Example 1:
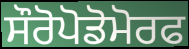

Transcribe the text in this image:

ਸੌਰੋਪੋਡੋਮੋਰਫ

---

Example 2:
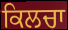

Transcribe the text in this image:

ਕਿਲਚਾ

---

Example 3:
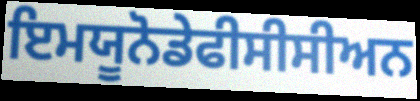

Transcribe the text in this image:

ਇਮਯੂਨੋਡੇਫੀਸੀਸੀਅਨ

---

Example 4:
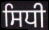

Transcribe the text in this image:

ਸਿਧੀ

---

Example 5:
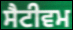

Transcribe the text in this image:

ਸੈਟੀਵਮ